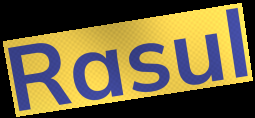
Rasul